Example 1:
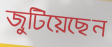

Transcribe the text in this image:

জুটিয়েছেন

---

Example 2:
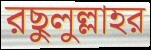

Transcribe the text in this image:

রছুলুল্লাহর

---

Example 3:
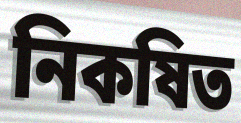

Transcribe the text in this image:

নিকষিত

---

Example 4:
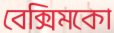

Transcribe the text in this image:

বেক্সিমকো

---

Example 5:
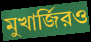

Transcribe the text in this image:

মুখার্জিরও